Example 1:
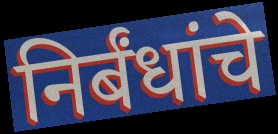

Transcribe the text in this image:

निर्बंधांचे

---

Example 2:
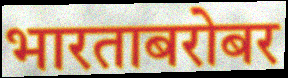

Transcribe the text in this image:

भारताबरोबर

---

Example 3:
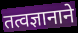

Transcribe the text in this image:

तत्वज्ञानाने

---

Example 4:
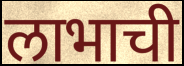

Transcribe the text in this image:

लाभाची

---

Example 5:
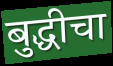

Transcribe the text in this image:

बुद्धीचा